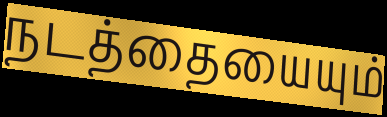
நடத்தையையும்